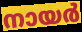
നായർ